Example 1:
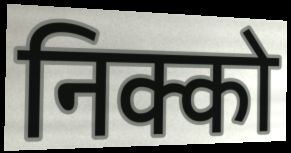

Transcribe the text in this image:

निक्को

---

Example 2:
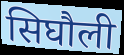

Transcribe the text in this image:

सिघौली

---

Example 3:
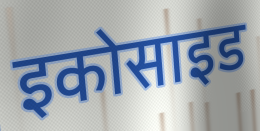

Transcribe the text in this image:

इकोसाइड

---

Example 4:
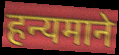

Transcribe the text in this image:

हन्यमाने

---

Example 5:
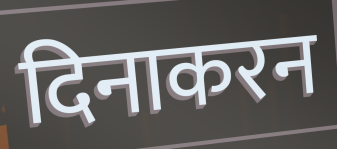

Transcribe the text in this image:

दिनाकरन